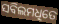
ସବିଲମଧିତେ